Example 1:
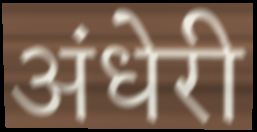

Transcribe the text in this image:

अंधेरी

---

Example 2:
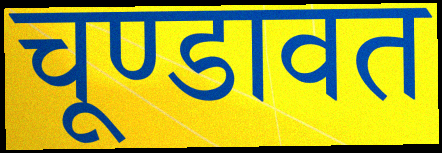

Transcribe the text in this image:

चूण्डावत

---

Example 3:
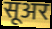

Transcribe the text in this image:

सूअर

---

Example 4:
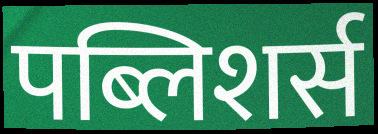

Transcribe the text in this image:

पब्लिशर्स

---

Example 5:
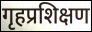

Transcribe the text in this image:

गृहप्रशिक्षण